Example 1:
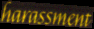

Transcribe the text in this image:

harassment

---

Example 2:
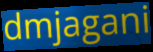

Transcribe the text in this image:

dmjagani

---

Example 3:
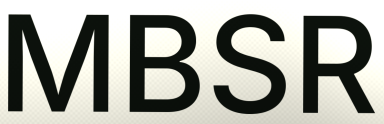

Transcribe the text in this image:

MBSR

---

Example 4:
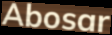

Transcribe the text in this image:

Abosar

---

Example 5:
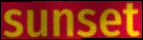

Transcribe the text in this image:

sunset